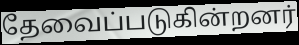
தேவைப்படுகின்றனர்